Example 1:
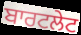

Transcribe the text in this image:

ਬਾਰਟਲੇਟ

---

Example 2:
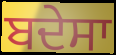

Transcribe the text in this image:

ਬਦੇਸਾ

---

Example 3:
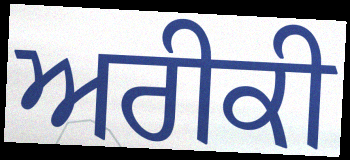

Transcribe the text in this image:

ਅਰੀਕੀ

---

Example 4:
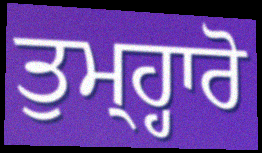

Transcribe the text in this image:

ਤੁਮ੍ਹ੍ਹਾਰੋ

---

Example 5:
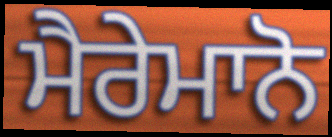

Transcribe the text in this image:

ਮੈਰੇਮਾਨੋ